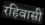
रहिवासी